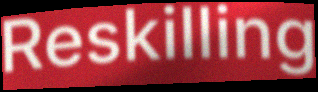
Reskilling